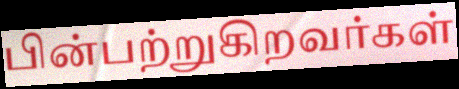
பின்பற்றுகிறவர்கள்